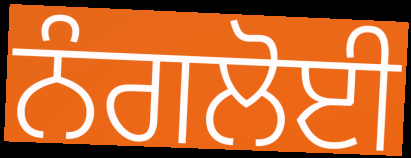
ਨੰਗਲੋਈ